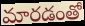
మారడంతో